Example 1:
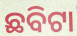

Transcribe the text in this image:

ଛବିଟା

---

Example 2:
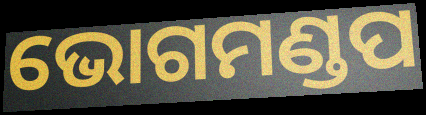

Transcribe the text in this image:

ଭୋଗମଣ୍ଡପ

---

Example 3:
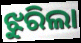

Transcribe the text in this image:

ଝୁରିଲା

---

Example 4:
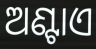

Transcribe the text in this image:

ଅଣ୍ଟାଏ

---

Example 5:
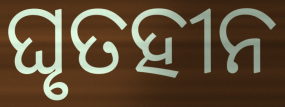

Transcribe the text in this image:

ଘୃତହୀନ